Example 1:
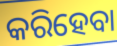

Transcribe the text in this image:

କରିହେବା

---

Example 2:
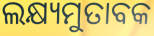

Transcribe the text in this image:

ଲକ୍ଷ୍ୟମୁତାବକ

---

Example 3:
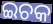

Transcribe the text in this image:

ଇଚକ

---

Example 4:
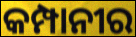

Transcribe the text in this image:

କମ୍ପାନୀର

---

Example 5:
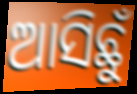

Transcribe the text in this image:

ଆସିଛୁଁ